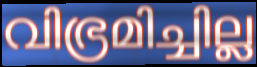
വിഭ്രമിച്ചില്ല